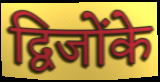
द्विजोंके